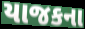
યાજકના